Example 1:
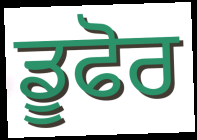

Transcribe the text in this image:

ਡੂਫੋਰ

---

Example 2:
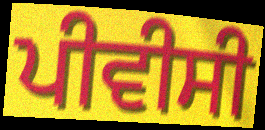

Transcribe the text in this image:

ਪੀਵੀਸੀ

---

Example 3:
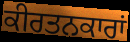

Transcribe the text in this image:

ਕੀਰਤਨਕਾਰਾਂ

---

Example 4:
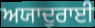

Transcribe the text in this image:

ਅਯਾਦੁਰਾਈ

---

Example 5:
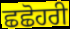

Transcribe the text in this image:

ਛਛੋਹਰੀ